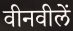
वीनवीलें